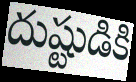
దుష్టుడికి